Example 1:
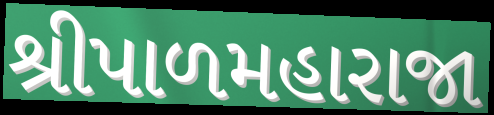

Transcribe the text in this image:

શ્રીપાળમહારાજા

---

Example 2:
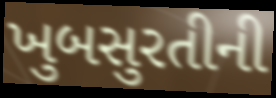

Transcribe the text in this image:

ખુબસુરતીની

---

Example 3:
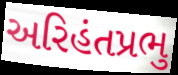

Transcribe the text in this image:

અરિહંતપ્રભુ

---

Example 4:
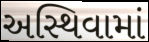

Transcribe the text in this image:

અસ્થિવામાં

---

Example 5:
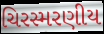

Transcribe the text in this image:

ચિરસ્મરણીય